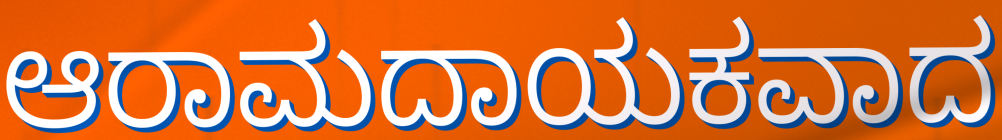
ಆರಾಮದಾಯಕವಾದ